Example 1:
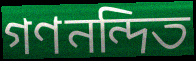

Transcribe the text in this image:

গণনন্দিত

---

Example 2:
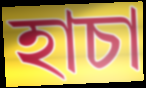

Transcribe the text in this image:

হাচা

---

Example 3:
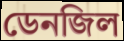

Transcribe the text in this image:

ডেনজিল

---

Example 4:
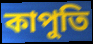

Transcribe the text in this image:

কাপুতি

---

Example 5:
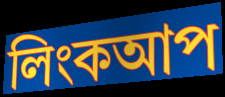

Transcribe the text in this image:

লিংকআপ